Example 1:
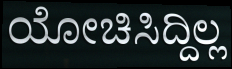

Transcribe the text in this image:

ಯೋಚಿಸಿದ್ದಿಲ್ಲ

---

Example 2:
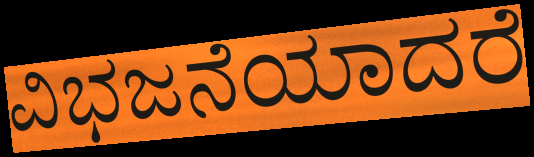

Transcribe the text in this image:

ವಿಭಜನೆಯಾದರೆ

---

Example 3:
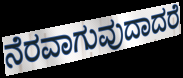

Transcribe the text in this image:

ನೆರವಾಗುವುದಾದರೆ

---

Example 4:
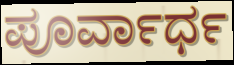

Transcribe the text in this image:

ಪೂರ್ವಾರ್ಧ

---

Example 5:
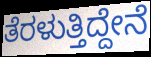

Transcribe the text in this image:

ತೆರಳುತ್ತಿದ್ದೇನೆ